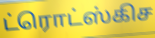
ட்ரொட்ஸ்கிச